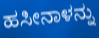
ಹಸೀನಾಳನ್ನು